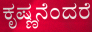
ಕೃಷ್ಣನೆಂದರೆ